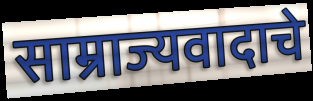
साम्राज्यवादाचे